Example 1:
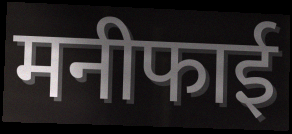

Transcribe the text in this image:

मनीफाई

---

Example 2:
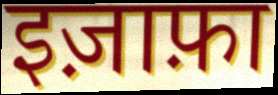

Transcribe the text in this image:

इज़ाफ़ा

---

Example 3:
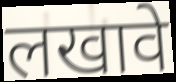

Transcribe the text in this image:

लखावे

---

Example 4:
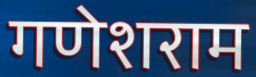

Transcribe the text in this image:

गणेशराम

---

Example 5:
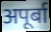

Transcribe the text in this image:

अपूर्बा